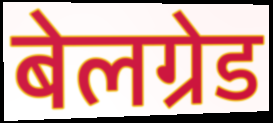
बेलग्रेड